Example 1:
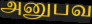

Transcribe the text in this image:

அனுபவ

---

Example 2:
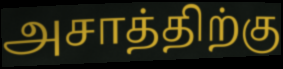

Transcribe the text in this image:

அசாத்திற்கு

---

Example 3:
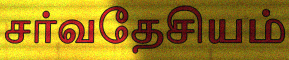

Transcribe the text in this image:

சர்வதேசியம்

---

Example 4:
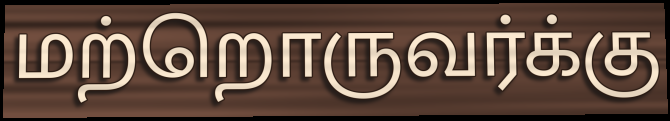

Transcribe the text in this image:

மற்றொருவர்க்கு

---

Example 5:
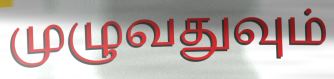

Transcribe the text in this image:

முழுவதுவும்